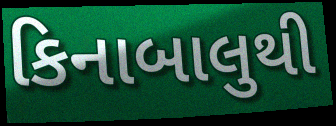
કિનાબાલુથી